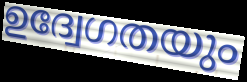
ഉദ്വേഗതയും